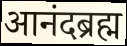
आनंदब्रह्म